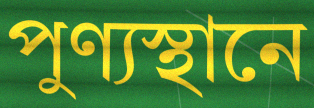
পুণ্যস্থানে